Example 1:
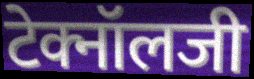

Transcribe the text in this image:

टेक्‍नॉलजी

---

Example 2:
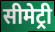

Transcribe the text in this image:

सीमेट्री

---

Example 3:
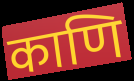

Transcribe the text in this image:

काणि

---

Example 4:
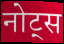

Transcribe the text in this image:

नोट्‌स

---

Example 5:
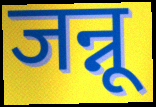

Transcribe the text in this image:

जन्नू